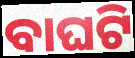
ବାଘଟି